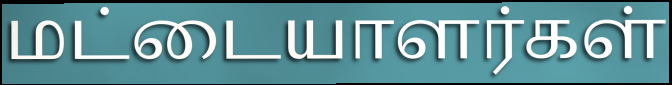
மட்டையாளர்கள்